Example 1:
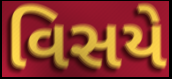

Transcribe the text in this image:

વિસયે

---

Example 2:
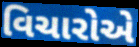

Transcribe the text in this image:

વિચારોએ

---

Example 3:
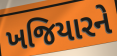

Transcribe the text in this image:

ખજિયારને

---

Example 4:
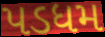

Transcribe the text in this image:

પડધમ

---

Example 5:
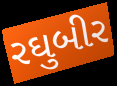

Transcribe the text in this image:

રઘુબીર